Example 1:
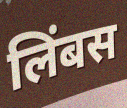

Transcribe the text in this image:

लिंबस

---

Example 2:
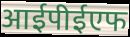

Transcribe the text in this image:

आईपीईएफ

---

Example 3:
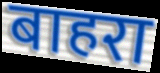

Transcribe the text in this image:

बाहरा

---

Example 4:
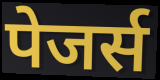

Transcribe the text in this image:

पेजर्स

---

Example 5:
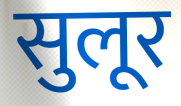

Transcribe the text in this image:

सुलूर